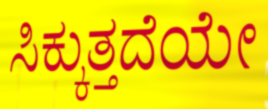
ಸಿಕ್ಕುತ್ತದೆಯೇ